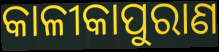
କାଳୀକାପୁରାଣ